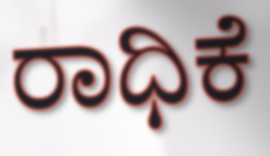
ರಾಧಿಕೆ